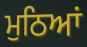
ਮੁਠਿਆਂ